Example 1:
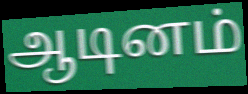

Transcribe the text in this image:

ஆடினம்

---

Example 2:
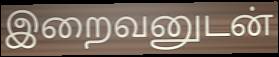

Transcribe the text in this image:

இறைவனுடன்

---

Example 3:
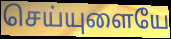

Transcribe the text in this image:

செய்யுளையே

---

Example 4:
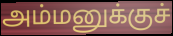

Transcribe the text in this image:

அம்மனுக்குச்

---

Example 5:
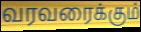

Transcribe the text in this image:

வரவரைக்கும்